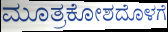
ಮೂತ್ರಕೋಶದೊಳಗೆ